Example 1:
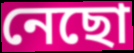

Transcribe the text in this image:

নেছো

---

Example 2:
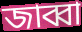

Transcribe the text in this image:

জাব্বা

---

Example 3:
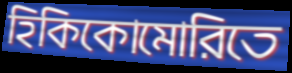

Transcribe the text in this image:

হিকিকোমোরিতে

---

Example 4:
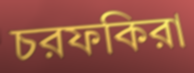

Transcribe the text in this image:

চরফকিরা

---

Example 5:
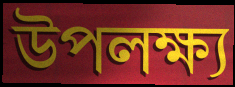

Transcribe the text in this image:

উপলক্ষ্য